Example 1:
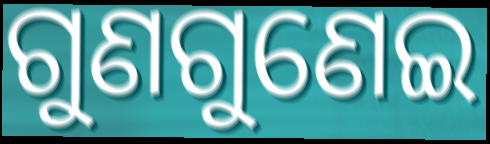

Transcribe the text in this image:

ଗୁଣଗୁଣେଇ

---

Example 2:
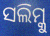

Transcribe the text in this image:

ସଲିମ୍କୁ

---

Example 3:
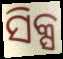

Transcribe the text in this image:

ସିକ୍ସ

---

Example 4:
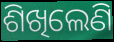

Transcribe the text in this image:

ଶିଖିଲେଣି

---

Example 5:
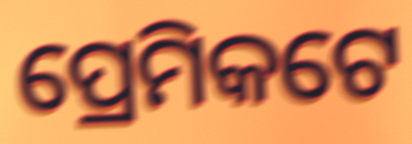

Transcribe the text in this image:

ପ୍ରେମିକଟେ